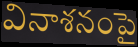
వినాశనంపై